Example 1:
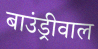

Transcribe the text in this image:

बाउंड्रीवाल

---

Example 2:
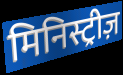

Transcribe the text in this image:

मिनिस्ट्रीज़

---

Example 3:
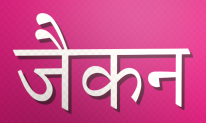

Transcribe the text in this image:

जैकन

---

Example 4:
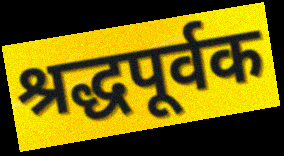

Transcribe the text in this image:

श्रद्धपूर्वक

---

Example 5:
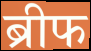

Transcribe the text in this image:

ब्रीफ